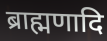
ब्राह्मणादि